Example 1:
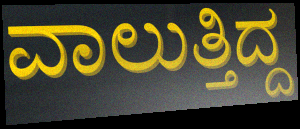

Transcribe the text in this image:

ವಾಲುತ್ತಿದ್ದ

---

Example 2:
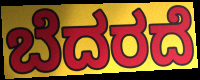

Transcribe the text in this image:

ಬೆದರದೆ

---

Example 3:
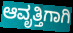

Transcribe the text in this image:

ಆವೃತ್ತಿಗಾಗಿ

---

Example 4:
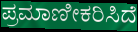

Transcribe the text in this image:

ಪ್ರಮಾಣೀಕರಿಸಿದೆ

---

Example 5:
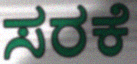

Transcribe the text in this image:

ಸರಕೆ